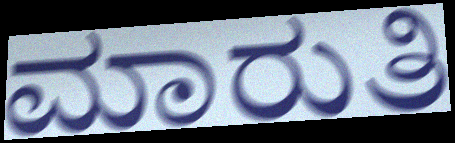
ಮಾರುತಿ